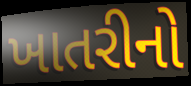
ખાતરીનો